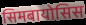
सिमबायोसिस